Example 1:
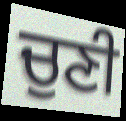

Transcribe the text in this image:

ਚੁਣੀ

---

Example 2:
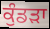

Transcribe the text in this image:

ਕੁੰਡੜਾ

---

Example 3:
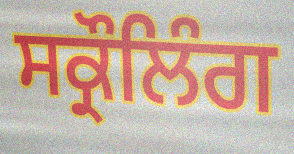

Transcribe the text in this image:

ਸਕ੍ਰੌਲਿੰਗ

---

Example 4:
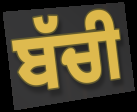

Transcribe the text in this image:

ਬੱਚੀ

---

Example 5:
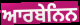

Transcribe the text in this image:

ਆਰਬੇਨਿਨ